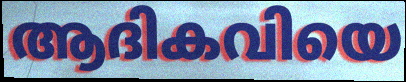
ആദികവിയെ